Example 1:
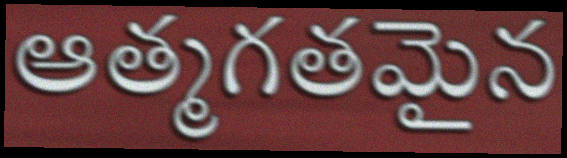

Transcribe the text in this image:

ఆత్మగతమైన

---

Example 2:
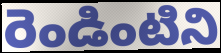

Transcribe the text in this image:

రెండింటిని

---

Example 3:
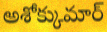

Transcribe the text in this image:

అశోక్కుమార్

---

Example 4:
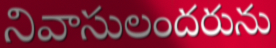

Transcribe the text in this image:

నివాసులందరును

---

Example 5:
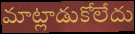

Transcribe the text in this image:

మాట్లాడుకోలేదు